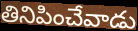
తినిపించేవాడు